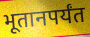
भूतानपर्यंत